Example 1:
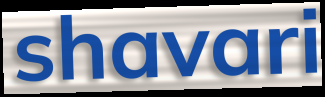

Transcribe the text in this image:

shavari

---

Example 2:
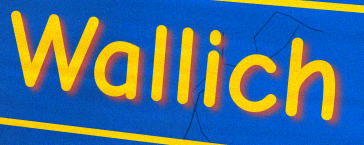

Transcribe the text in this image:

Wallich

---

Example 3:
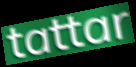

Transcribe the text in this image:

tattar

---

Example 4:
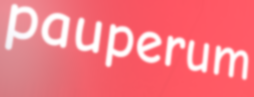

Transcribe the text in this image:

pauperum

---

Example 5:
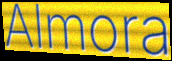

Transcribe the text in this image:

Almora